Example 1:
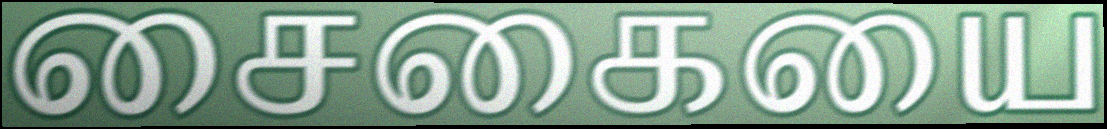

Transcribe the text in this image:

சைகையை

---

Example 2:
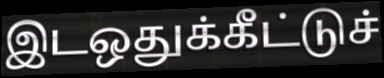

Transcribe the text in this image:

இடஒதுக்கீட்டுச்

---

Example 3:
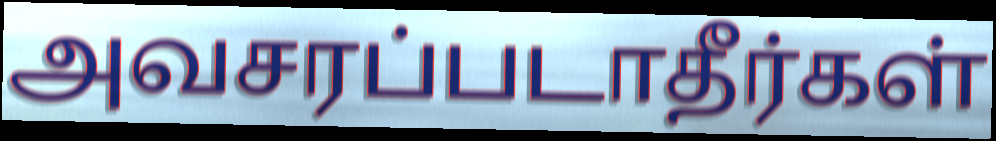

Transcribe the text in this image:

அவசரப்படாதீர்கள்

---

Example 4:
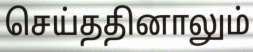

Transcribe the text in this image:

செய்ததினாலும்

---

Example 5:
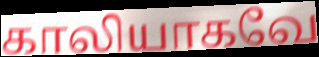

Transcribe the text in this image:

காலியாகவே